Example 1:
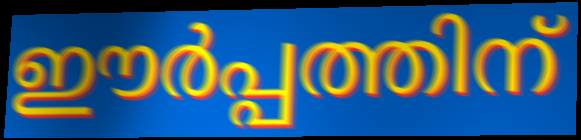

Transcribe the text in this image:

ഈർപ്പത്തിന്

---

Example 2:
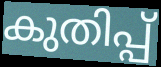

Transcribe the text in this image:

കുതിപ്പ്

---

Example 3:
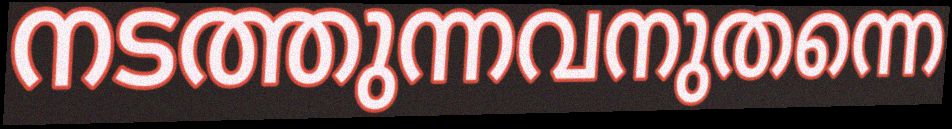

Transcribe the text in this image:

നടത്തുന്നവനുതന്നെ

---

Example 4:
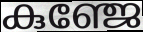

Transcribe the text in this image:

കുഞ്ജേ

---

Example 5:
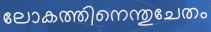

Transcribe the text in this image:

ലോകത്തിനെന്തുചേതം